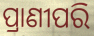
ପ୍ରାଣୀପରି